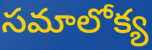
సమాలోక్య